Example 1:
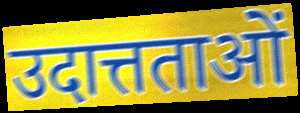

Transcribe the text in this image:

उदात्तताओं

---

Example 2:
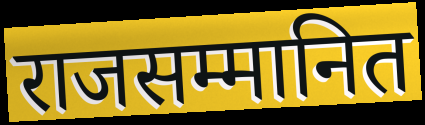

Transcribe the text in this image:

राजसम्मानित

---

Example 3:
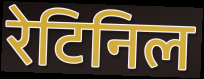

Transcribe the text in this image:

रेटिनिल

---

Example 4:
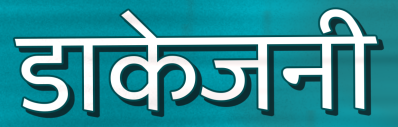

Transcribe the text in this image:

डाकेजनी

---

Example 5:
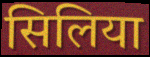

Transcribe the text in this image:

सिलिया